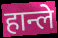
हान्ले